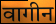
वागीन